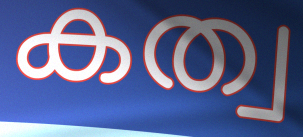
കത്വ